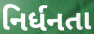
નિર્ધનતા